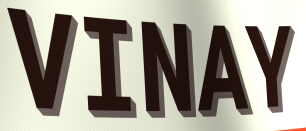
VINAY